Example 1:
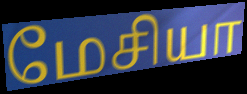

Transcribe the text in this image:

மேசியா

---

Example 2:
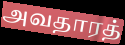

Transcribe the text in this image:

அவதாரத்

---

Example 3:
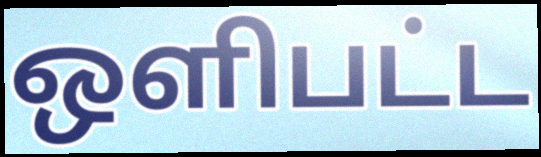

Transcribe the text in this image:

ஒளிபட்ட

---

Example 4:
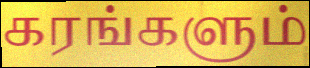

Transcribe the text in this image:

கரங்களும்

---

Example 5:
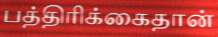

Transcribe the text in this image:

பத்திரிக்கைதான்